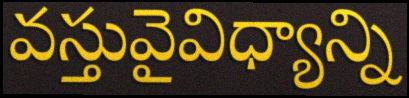
వస్తువైవిధ్యాన్ని